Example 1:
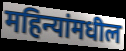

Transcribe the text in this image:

महिन्यांमधील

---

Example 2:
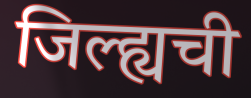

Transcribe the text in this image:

जिल्ह्यची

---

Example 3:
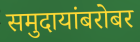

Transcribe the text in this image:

समुदायांबरोबर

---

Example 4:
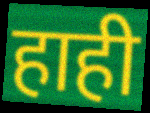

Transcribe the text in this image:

हाही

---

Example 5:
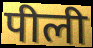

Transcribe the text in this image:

पीली